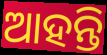
ଆହନ୍ତି